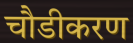
चौडीकरण